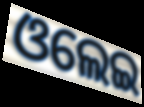
ଓଲେଇ